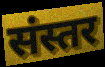
संस्तर